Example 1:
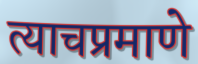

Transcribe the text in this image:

त्याचप्रमाणे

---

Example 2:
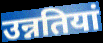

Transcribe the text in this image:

उन्नतियां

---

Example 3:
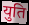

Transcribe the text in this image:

युति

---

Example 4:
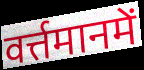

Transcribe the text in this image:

वर्त्तमानमें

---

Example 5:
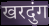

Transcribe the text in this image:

खरदुंग